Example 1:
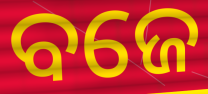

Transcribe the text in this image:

ବଜେ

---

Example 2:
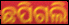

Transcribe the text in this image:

ଛପିଗଲି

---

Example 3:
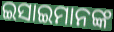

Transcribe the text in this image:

ଇସାଇମାନଙ୍କ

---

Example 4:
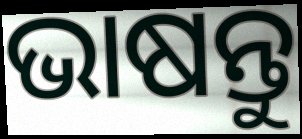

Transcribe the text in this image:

ଭାଷନ୍ତୁ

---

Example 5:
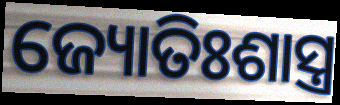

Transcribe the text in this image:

ଜ୍ୟୋତିଃଶାସ୍ତ୍ର